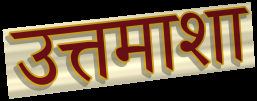
उत्तमाशा